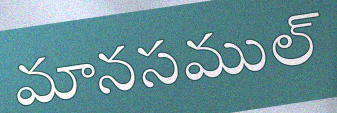
మానసముల్